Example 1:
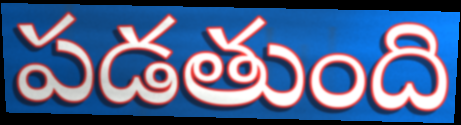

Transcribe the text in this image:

పడతుంది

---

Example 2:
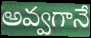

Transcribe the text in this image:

అవ్వగానే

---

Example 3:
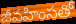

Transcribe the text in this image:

జీవహింసతో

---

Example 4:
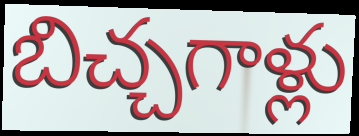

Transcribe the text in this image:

బిచ్చగాళ్లు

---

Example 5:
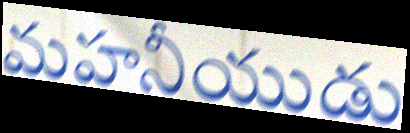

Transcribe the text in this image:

మహనీయుడు